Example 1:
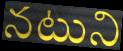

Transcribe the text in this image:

నటుని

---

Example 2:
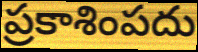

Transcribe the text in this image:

ప్రకాశింపదు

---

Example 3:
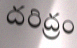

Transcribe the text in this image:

దరిద్రం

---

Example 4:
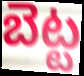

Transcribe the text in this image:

బెట్ట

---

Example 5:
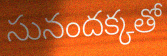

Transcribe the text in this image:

సునందక్కతో